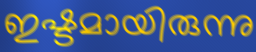
ഇഷ്ടമായിരുന്നു